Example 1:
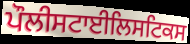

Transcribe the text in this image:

ਪੌਲੀਸਟਾਈਲਿਸਟਿਕਸ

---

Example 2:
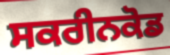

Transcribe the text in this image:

ਸਕਰੀਨਕੋਡ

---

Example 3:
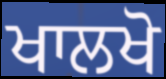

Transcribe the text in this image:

ਖਾਲਖੋ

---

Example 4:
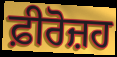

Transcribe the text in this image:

ਫ਼ੀਰੋਜ਼ਹ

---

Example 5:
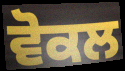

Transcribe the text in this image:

ਵੋਕਲ